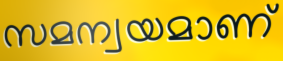
സമന്വയമാണ്